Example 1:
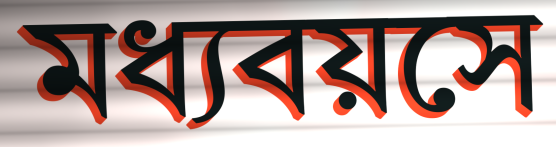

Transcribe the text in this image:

মধ্যবয়সে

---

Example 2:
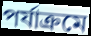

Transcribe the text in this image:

পর্যাক্রমে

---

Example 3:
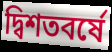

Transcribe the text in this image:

দ্বিশতবর্ষে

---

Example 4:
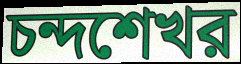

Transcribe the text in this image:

চন্দশেখর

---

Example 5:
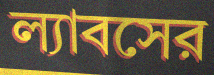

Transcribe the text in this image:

ল্যাবসের